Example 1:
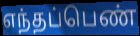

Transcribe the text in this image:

எந்தப்பெண்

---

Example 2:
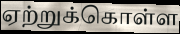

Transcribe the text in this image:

ஏற்றுக்கொள்ள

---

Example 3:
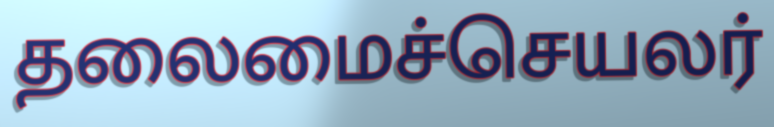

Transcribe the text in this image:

தலைமைச்செயலர்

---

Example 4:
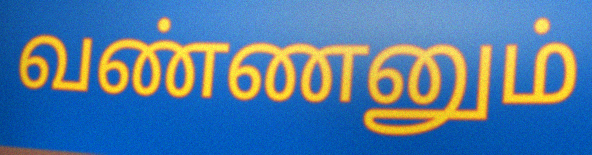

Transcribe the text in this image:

வண்ணனும்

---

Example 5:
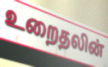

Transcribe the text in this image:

உறைதலின்